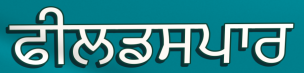
ਫੀਲਡਸਪਾਰ